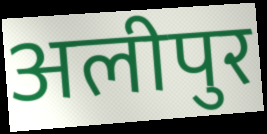
अलीपुर